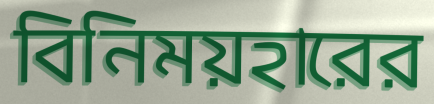
বিনিময়হারের